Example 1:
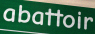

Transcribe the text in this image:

abattoir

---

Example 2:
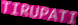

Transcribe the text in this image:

TIRUPATI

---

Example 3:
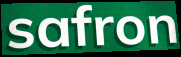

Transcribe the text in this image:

safron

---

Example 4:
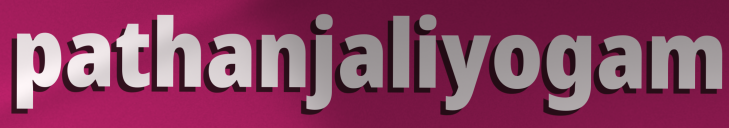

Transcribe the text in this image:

pathanjaliyogam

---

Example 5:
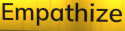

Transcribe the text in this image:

Empathize